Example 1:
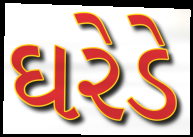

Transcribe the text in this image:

ઘરેડે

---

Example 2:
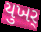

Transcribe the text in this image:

યુખર્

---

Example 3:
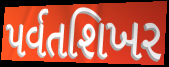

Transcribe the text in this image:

પર્વતશિખર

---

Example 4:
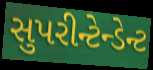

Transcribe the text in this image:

સુપરીન્ટેન્ડેન્ટ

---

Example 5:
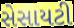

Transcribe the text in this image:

સેસાયટી